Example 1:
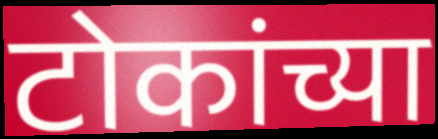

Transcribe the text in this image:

टोकांच्या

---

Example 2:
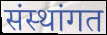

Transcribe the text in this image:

संस्थांगत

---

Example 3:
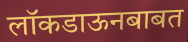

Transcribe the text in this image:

लॉकडाऊनबाबत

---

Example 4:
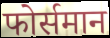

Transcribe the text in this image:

फोर्समान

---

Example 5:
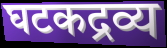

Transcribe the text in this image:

घटकद्रव्य